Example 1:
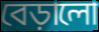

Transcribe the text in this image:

বেড়ালো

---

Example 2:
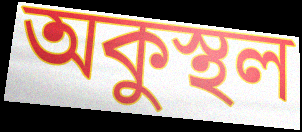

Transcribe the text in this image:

অকুস্থল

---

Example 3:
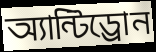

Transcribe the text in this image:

অ্যান্টিড্রোন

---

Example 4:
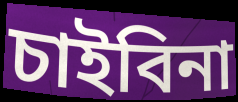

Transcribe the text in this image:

চাইবিনা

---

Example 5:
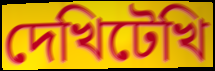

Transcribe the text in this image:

দেখিটেখি